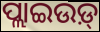
ପ୍ଲାଇଉଡ଼୍